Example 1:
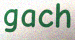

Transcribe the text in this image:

gach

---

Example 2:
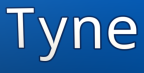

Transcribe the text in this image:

Tyne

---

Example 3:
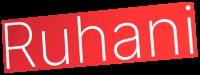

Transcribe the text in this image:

Ruhani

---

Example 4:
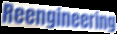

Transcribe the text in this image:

Reengineering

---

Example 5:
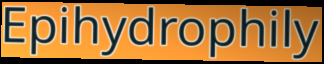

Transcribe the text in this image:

Epihydrophily